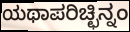
ಯಥಾಪರಿಚ್ಛಿನ್ನಂ